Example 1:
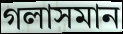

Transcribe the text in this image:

গলাসমান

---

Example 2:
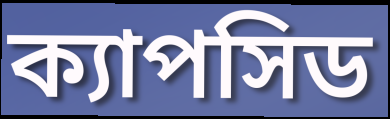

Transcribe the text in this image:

ক্যাপসিড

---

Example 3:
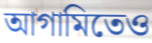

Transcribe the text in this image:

আগামিতেও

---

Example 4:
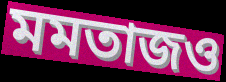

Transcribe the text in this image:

মমতাজও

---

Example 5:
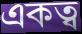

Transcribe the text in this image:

একত্ব